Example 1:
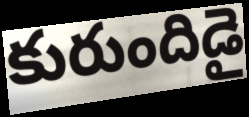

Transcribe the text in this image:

కురుందిడై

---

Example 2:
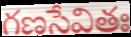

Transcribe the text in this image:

గణసేవితః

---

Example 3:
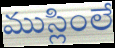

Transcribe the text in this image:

ముస్లింలే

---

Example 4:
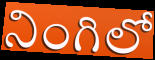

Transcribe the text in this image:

నింగిలో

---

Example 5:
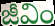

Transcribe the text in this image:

జీవిం